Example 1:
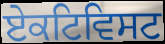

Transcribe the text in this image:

ਏਕਟਿਵਿਸਟ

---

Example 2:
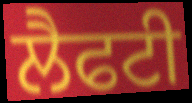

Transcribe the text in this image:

ਲੈਫਟੀ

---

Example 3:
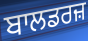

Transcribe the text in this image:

ਬਾਲਡਰਜ਼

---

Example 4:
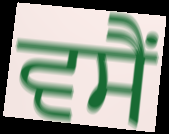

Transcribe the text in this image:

ਵਸੈਂ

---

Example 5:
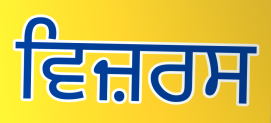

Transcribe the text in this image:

ਵਿਜ਼ਰਸ